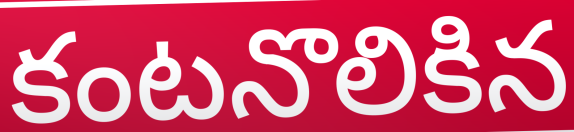
కంటనొలికిన